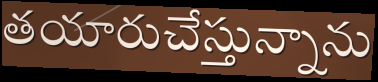
తయారుచేస్తున్నాను